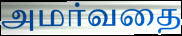
அமர்வதை